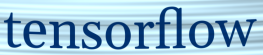
tensorflow